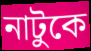
নাটুকে